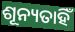
ଶୂନ୍ୟତାହିଁ